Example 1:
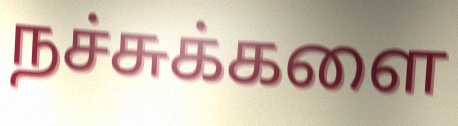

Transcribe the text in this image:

நச்சுக்களை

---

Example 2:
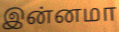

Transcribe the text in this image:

இன்னமா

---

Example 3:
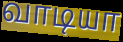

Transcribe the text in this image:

வாடியா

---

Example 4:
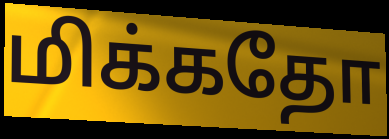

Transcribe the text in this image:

மிக்கதோ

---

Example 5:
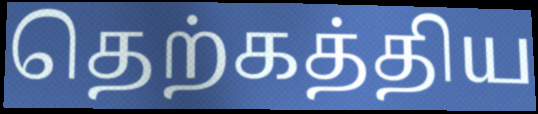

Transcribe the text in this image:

தெற்கத்திய